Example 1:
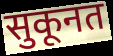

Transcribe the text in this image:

सुकूनत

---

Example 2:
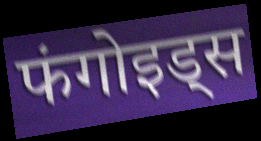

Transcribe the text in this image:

फंगोइड्स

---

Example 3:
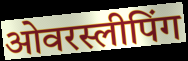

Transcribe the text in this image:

ओवरस्लीपिंग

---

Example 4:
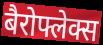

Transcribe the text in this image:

बैरोफ्लेक्स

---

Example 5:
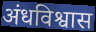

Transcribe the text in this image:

अंधविश्वास